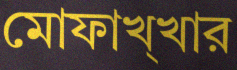
মোফাখ্খার